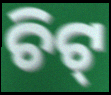
ଚିଟ୍